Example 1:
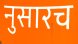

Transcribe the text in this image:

नुसारच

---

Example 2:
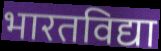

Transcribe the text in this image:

भारतविद्या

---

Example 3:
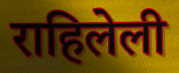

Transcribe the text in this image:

राहिलेली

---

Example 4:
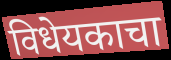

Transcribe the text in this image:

विधेयकाचा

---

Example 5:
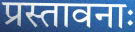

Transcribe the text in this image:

प्रस्तावनाः